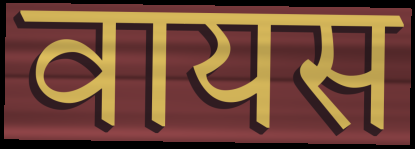
वायस